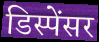
डिस्पेंसर